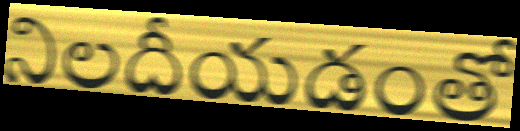
నిలదీయడంతో